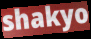
shakyo